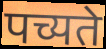
पच्यते